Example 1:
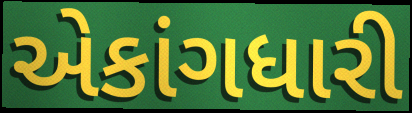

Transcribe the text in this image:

એકાંગધારી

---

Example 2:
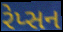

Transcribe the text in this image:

રેપ્સન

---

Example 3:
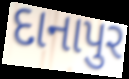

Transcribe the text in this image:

દાનાપુર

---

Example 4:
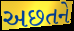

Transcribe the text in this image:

અછતને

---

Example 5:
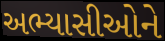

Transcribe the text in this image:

અભ્યાસીઓને